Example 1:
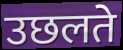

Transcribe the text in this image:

उछलते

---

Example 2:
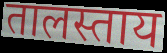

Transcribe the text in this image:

तालस्ताय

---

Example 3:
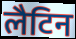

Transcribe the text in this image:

लैटिन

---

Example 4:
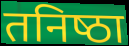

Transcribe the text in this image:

तनिष्‍ठा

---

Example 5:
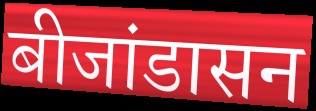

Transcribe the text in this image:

बीजांडासन